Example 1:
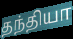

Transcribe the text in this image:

தந்தியா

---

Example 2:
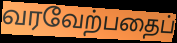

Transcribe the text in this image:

வரவேற்பதைப்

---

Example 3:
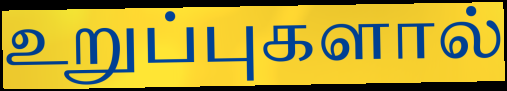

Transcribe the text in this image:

உறுப்புகளால்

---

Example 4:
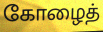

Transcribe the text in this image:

கோழைத்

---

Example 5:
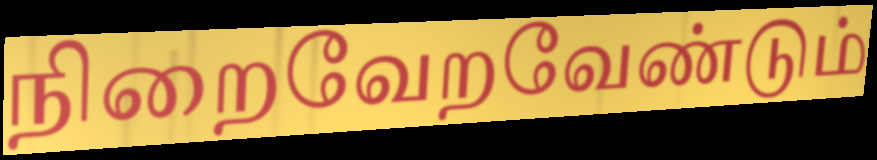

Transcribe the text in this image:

நிறைவேறவேண்டும்